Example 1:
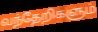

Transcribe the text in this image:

வந்தேறிகளும்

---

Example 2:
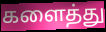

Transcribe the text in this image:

களைத்து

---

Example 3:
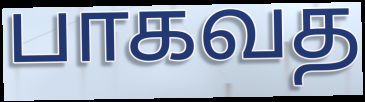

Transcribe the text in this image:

பாகவத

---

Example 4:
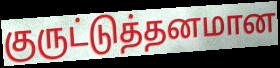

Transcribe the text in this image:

குருட்டுத்தனமான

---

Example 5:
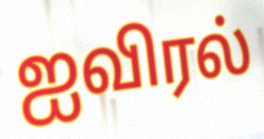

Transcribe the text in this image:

ஐவிரல்